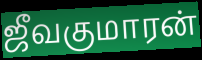
ஜீவகுமாரன்